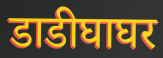
डाडीघाघर